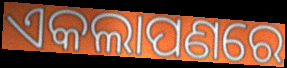
ଏକଲାପଣରେ